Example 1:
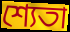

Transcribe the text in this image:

শ্যেতা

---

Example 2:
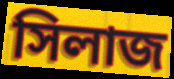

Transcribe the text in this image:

সিলাজ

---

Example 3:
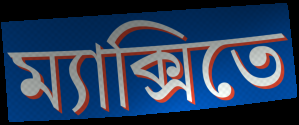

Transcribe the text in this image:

ম্যাক্সিতে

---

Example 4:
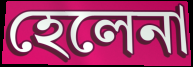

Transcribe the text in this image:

হেলেনা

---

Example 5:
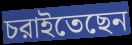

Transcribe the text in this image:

চরাইতেছেন